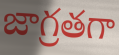
జాగ్రతగా